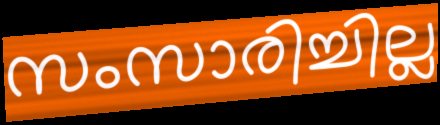
സംസാരിച്ചില്ല